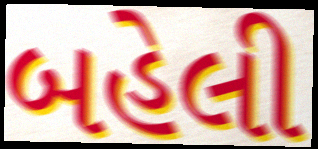
બહેલી